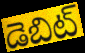
డెబిట్